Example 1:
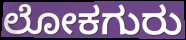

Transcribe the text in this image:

ಲೋಕಗುರು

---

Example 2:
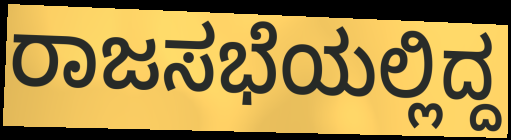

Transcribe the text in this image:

ರಾಜಸಭೆಯಲ್ಲಿದ್ದ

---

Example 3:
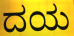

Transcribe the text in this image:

ದಯ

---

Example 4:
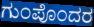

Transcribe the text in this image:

ಗುಂಪೊಂದರ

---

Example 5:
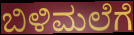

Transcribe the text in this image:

ಬಿಳಿಮಲೆಗೆ